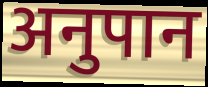
अनुपान